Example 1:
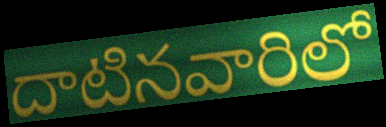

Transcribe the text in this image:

దాటినవారిలో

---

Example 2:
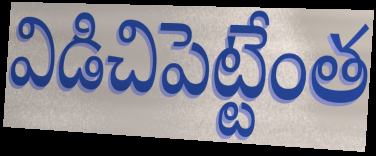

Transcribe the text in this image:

విడిచిపెట్టేంత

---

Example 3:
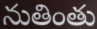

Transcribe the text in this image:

నుతింతు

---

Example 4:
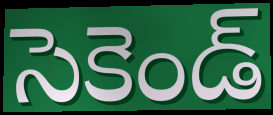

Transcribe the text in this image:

సెకెండ్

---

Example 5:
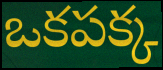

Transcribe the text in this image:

ఒకపక్క